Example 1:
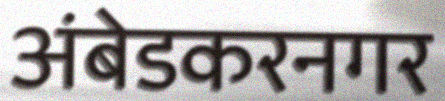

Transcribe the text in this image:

अंबेडकरनगर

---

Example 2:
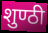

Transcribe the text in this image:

शुण्ठी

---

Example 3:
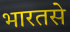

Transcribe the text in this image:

भारतसे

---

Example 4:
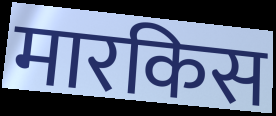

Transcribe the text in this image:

मारकिस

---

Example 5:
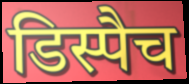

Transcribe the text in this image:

डिस्‍पैच